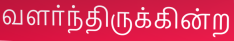
வளர்ந்திருக்கின்ற